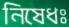
নিষেধঃ